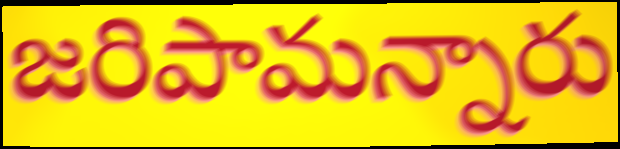
జరిపామన్నారు